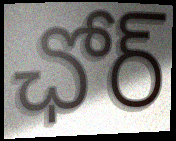
ఛోర్